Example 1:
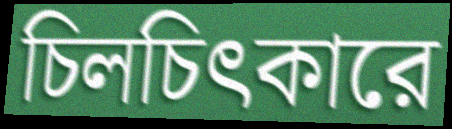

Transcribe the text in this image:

চিলচিৎকারে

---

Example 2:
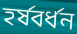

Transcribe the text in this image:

হর্ষবর্ধন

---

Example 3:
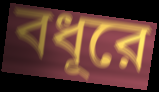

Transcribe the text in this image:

বধূরে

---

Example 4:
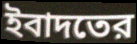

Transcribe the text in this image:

ইবাদতের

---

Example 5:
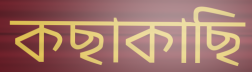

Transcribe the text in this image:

কছাকাছি